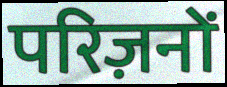
परिज़नों